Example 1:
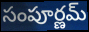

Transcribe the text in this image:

సంపూర్ణమ్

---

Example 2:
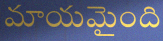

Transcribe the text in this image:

మాయమైంది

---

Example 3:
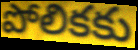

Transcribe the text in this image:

పోలికకు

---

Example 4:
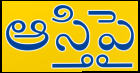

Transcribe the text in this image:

ఆస్తిపై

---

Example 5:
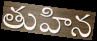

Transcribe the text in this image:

తుహిన